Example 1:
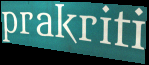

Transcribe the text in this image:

prakriti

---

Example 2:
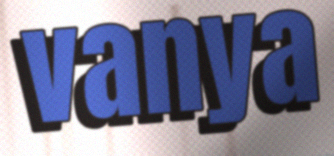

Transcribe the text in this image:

vanya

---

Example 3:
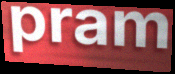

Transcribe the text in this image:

pram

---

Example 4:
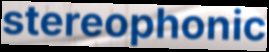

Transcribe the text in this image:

stereophonic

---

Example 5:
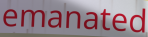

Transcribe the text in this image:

emanated